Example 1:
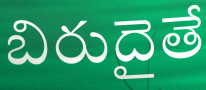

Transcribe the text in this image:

బిరుదైతే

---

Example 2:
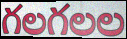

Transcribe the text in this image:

గలగలల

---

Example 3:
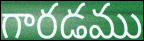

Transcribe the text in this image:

గారడము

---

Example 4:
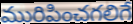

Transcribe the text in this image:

మురిపించగలిగే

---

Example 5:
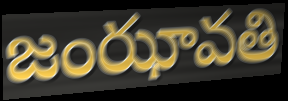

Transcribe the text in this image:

జంఝావతి